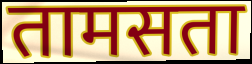
तामसता